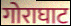
गोराघाट